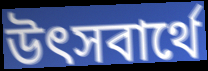
উৎসবার্থে